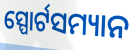
ସ୍ପୋର୍ଟସମ୍ୟାନ